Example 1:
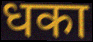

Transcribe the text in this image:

धका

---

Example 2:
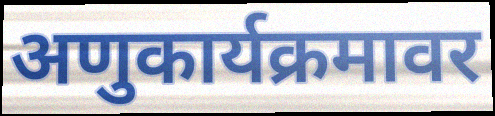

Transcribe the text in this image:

अणुकार्यक्रमावर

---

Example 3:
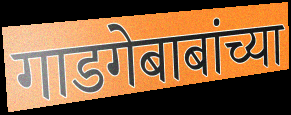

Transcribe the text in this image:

गाडगेबाबांच्या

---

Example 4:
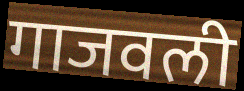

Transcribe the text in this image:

गाजवली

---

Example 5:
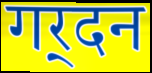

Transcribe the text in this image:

गर्दन